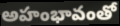
అహంభావంతో